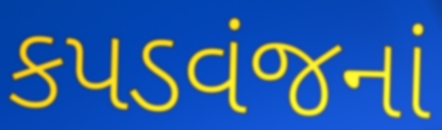
કપડવંજનાં